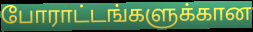
போராட்டங்களுக்கான